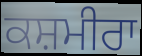
ਕਸ਼ਮੀਰਾ